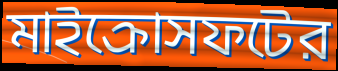
মাইক্রোসফটের